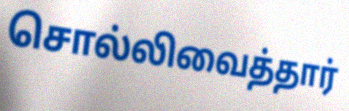
சொல்லிவைத்தார்